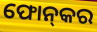
ଫୋନ୍‌କର